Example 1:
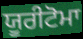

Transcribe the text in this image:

ਯੂਰੀਟੋਮਾ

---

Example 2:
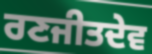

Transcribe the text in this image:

ਰਣਜੀਤਦੇਵ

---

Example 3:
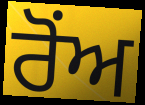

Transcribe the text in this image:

ਰੋਂਅ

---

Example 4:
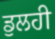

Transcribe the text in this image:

ਡੁਲਹੀ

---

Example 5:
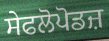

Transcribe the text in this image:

ਸੇਫਲੋਪੋਡਜ਼